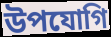
উপযোগি